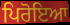
ਪਿਰੋਇਆ